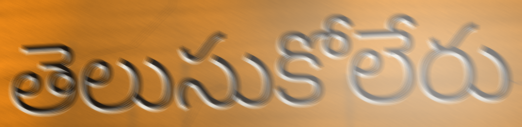
తెలుసుకోలేరు